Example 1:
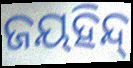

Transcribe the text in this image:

ଜୟହିନ୍ଦ୍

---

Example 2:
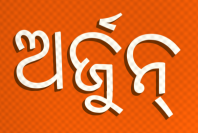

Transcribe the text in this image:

ଅର୍ଜୁନ୍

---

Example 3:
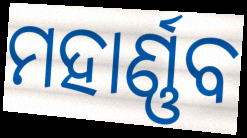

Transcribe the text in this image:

ମହାର୍ଣ୍ଣବ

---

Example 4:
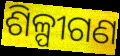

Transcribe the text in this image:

ଶିଳ୍ପୀଗଣ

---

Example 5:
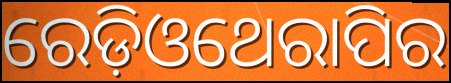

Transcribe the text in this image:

ରେଡ଼ିଓଥେରାପିର